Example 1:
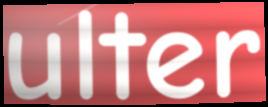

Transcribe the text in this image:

ulter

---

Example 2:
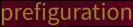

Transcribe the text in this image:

prefiguration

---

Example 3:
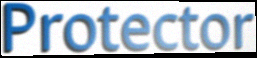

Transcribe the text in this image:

Protector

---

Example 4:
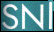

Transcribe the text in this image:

SNl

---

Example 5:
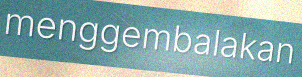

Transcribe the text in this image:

menggembalakan